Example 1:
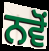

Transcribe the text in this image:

ਨਵੋਂ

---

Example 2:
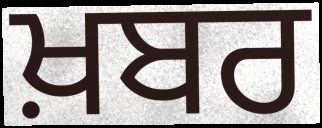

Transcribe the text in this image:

ਖ਼ਬਰ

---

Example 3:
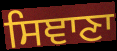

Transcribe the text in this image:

ਸਿਞਾਣਾ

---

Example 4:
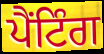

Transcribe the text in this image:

ਪੈਂਟਿੰਗ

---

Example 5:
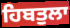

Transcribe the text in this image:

ਹਿਬਤੁਲਾ